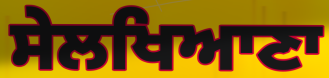
ਸੇਲਖਿਆਣਾ